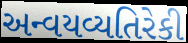
અન્વયવ્યતિરેકી